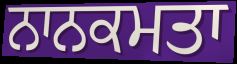
ਨਾਨਕਮਤਾ